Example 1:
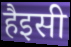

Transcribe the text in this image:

हैइसी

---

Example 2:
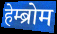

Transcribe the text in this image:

हेम्ब्रोम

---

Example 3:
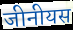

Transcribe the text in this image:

जीनीयस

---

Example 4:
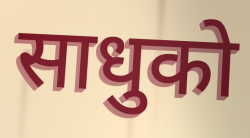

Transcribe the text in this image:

साधुको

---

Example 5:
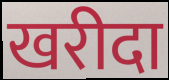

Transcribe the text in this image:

खरीदा